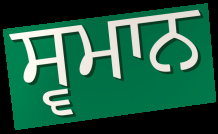
ਸ੍ਵਮਾਨ